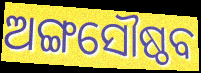
ଅଙ୍ଗସୌଷ୍ଠବ